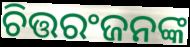
ଚିତ୍ତରଂଜନଙ୍କ